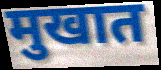
मुखात